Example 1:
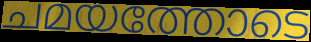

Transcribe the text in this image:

ചമയത്തോടെ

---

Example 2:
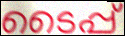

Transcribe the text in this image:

ടൈപ്പ്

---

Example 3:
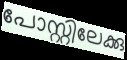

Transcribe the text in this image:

പോസ്റ്റിലേക്കു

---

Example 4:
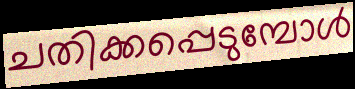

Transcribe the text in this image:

ചതിക്കപ്പെടുമ്പോൾ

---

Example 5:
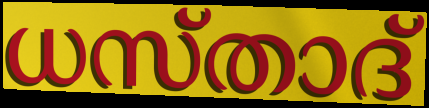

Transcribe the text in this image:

ധസ്താദ്